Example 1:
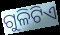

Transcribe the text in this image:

ଗୁଳିଟିଏ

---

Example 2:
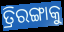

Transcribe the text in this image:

ତ୍ରିରଙ୍ଗାକୁ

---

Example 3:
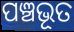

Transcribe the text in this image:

ପଞ୍ଚଭୂତ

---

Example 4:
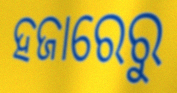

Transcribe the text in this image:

ହଜାରେରୁ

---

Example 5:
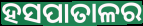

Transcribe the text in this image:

ହସପାତାଳର